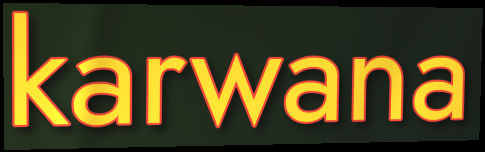
karwana